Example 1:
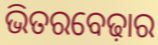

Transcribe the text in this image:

ଭିତରବେଢ଼ାର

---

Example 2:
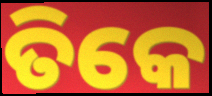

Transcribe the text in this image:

ତିକେ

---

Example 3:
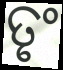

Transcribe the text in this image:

ତୃଂ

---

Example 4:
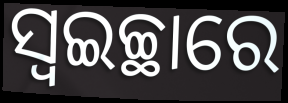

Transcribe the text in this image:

ସ୍ୱଇଚ୍ଛାରେ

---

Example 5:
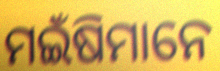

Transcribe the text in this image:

ମଇଁଷିମାନେ